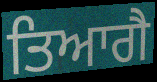
ਤਿਆਗੈ